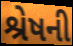
શ્રેષની